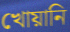
খোয়ানি